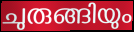
ചുരുങ്ങിയും